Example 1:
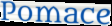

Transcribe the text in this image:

Pomace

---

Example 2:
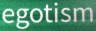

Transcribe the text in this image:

egotism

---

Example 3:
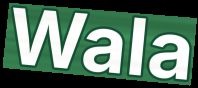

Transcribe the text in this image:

Wala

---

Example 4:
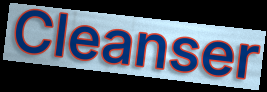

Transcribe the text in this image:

Cleanser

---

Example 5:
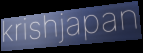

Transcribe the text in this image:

krishjapan